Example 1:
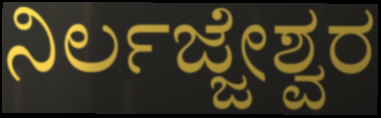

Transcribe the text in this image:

ನಿರ್ಲಜ್ಜೇಶ್ವರ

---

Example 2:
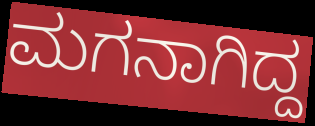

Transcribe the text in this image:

ಮಗನಾಗಿದ್ದ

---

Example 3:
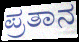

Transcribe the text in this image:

ಪ್ರತಾನ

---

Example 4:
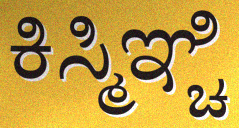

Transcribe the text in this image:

ಕಿಸ್ಮಿಞ್ಚಿ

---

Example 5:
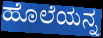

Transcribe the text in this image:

ಹೊಲೆಯನ್ನ